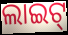
ଲାଇଟ୍